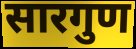
सारगुण